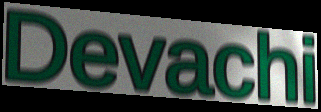
Devachi